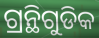
ଗ୍ରନ୍ଥିଗୁଡିକ